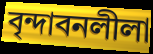
বৃন্দাবনলীলা